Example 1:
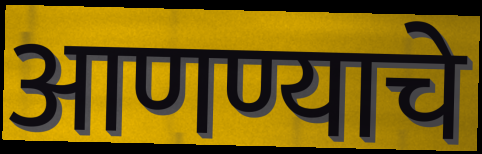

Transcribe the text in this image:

आणण्याचे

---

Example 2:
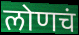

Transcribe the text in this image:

लोणचं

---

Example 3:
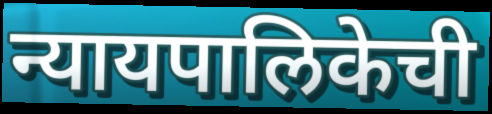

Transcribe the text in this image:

न्यायपालिकेची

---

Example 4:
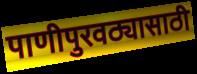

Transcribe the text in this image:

पाणीपुरवठ्यासाठी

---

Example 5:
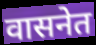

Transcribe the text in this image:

वासनेत